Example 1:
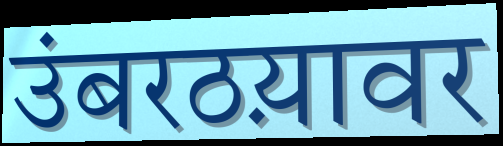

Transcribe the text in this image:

उंबरठय़ावर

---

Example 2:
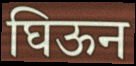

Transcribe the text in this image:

घिऊन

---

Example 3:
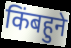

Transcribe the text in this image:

किंबहुने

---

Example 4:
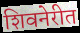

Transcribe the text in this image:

शिवनेरीत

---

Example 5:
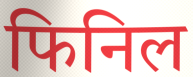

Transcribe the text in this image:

फिनिल